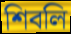
শিবলি